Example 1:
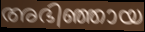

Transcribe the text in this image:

അഭിഞ്ഞായ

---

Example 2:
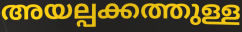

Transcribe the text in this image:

അയല്പക്കത്തുള്ള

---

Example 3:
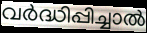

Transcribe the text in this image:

വർദ്ധിപ്പിച്ചാൽ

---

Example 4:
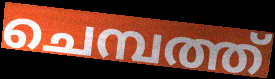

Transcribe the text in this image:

ചെമ്പത്ത്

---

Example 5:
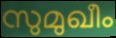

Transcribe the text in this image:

സുമുഖീം